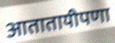
आतातायीपणा